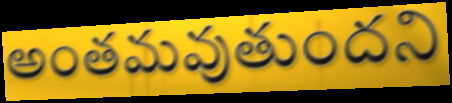
అంతమవుతుందని